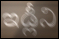
ఇడ్లీని